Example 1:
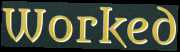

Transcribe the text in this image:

Worked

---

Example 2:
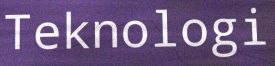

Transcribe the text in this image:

Teknologi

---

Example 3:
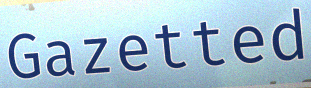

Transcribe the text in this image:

Gazetted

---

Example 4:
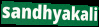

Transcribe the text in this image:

sandhyakali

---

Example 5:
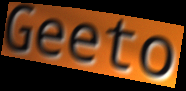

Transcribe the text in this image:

Geeto